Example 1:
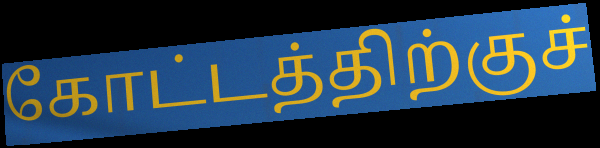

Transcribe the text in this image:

கோட்டத்திற்குச்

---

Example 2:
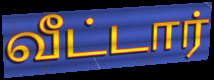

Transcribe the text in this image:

வீட்டார்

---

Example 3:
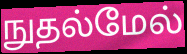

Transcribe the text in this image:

நுதல்மேல்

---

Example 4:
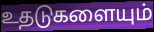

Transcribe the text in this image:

உதடுகளையும்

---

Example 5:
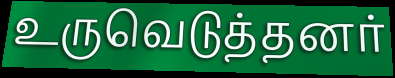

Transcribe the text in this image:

உருவெடுத்தனர்